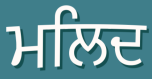
ਮਲਿਦ